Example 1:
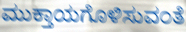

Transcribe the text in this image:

ಮುಕ್ತಾಯಗೊಳಿಸುವಂತೆ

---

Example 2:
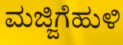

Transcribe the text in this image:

ಮಜ್ಜಿಗೆಹುಳಿ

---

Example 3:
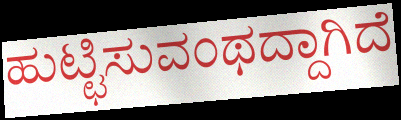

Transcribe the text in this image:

ಹುಟ್ಟಿಸುವಂಥದ್ದಾಗಿದೆ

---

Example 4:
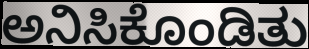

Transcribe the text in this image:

ಅನಿಸಿಕೊಂಡಿತು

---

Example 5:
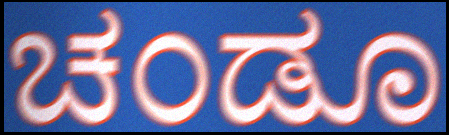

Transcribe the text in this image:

ಚಂಡೂ